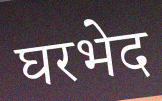
घरभेद